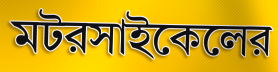
মটরসাইকেলের